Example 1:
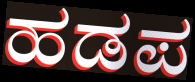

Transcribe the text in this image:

ಹಡಪ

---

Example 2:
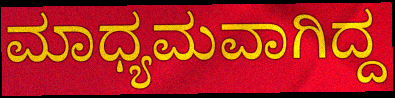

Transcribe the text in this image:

ಮಾಧ್ಯಮವಾಗಿದ್ದ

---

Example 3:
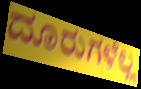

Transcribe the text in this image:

ದೂರುಗಳೆಲ್ಲ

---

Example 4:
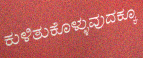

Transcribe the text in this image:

ಕುಳಿತುಕೊಳ್ಳುವುದಕ್ಕೂ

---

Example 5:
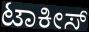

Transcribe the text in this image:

ಟಾಕೀಸ್